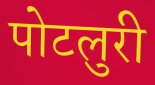
पोटलुरी